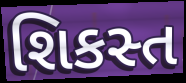
શિકસ્ત